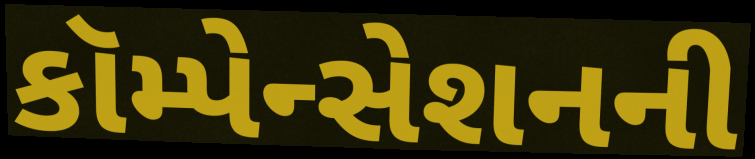
કૉમ્પેન્સેશનની